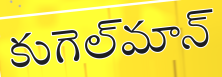
కుగెల్‌మాన్